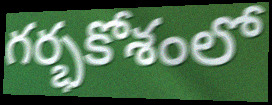
గర్భకోశంలో